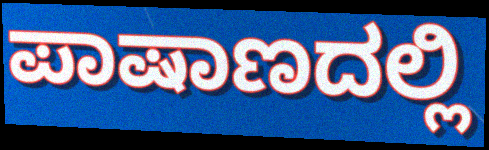
ಪಾಷಾಣದಲ್ಲಿ